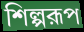
শিল্পরূপ